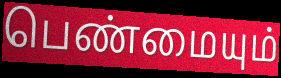
பெண்மையும்